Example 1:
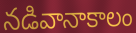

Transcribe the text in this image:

నడివానాకాలం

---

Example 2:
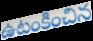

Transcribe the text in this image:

ఉటంకించిన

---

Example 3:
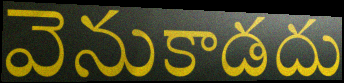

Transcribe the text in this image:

వెనుకాడదు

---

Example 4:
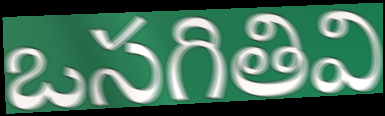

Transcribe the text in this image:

ఒసగితివి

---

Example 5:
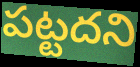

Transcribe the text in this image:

పట్టదని